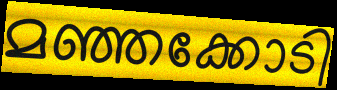
മഞ്ഞക്കോടി